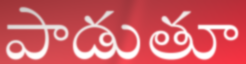
పాడుతూ